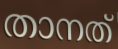
താനത്